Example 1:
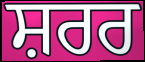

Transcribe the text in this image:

ਸ਼ਰਰ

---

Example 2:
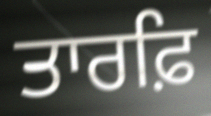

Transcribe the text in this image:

ਤਾਰਫ਼ਿ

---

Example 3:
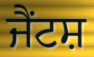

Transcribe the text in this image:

ਜੈਂਟਸ਼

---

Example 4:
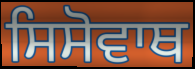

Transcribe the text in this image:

ਸਿਸੋਵਾਥ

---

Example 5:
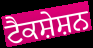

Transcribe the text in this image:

ਟੈਕਸ਼ੇਸ਼ਨ